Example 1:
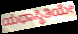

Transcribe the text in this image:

ಯಥಾಸ್ಥಿತಿಯೇ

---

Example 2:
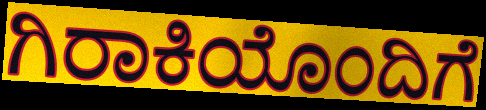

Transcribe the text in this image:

ಗಿರಾಕಿಯೊಂದಿಗೆ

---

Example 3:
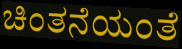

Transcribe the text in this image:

ಚಿಂತನೆಯಂತೆ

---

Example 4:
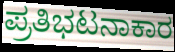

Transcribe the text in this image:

ಪ್ರತಿಭಟನಾಕಾರ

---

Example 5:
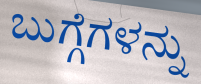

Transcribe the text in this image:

ಬುಗ್ಗೆಗಳನ್ನು